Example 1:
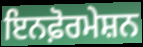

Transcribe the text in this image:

ਇਨਫ਼ੋਰਮੇਸ਼ਨ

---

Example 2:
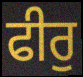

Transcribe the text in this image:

ਫੀਰੁ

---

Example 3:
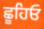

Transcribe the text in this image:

ਛੂਹਿਓ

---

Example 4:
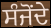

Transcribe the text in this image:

ਸੰਜੋਂਦੇ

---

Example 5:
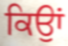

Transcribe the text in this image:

ਕਿਉਾਂ